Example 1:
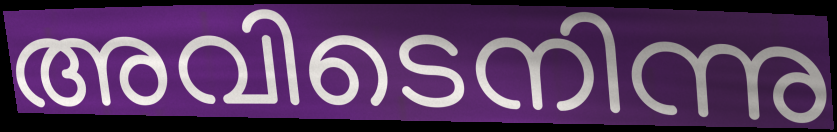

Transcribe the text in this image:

അവിടെനിന്നു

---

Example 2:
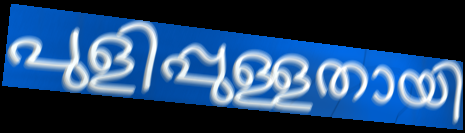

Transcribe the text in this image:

പുളിപ്പുള്ളതായി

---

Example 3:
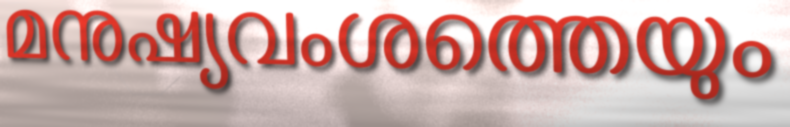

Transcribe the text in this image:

മനുഷ്യവംശത്തെയും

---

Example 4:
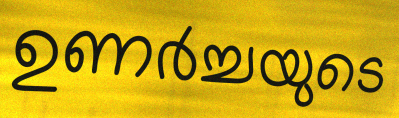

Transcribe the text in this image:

ഉണർച്ചയുടെ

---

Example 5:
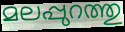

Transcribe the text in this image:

മലപ്പുറത്തു